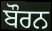
ਬੌਰਨ